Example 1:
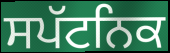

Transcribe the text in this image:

ਸਪੱਟਨਿਕ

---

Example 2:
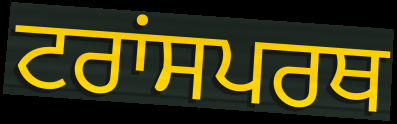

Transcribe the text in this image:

ਟਰਾਂਸਪਰਥ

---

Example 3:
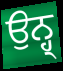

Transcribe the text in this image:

ਉਨ੍ਹ੍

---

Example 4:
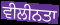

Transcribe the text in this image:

ਵੀਲੀਨਤਾ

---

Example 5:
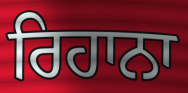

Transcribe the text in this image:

ਰਿਹਾਨਾ